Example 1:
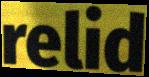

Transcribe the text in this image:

relid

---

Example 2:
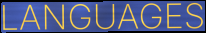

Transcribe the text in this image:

LANGUAGES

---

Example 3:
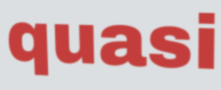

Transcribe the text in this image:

quasi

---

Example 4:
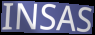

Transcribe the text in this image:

INSAS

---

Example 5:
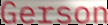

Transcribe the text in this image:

Gerson